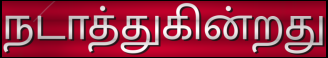
நடாத்துகின்றது